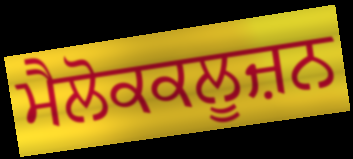
ਮੈਲੋਕਕਲੂਜ਼ਨ